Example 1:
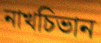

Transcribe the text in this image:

নাখচিভান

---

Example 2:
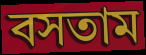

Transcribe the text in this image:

বসতাম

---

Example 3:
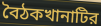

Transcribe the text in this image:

বৈঠকখানাটির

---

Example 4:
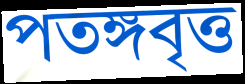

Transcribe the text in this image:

পতঙ্গবৃত্ত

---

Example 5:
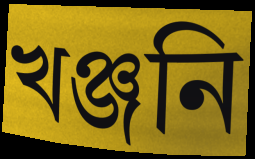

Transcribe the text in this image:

খঞ্জনি